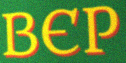
BEP